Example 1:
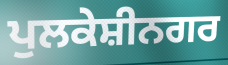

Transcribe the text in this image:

ਪੁਲਕੇਸ਼ੀਨਗਰ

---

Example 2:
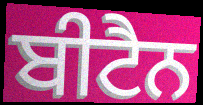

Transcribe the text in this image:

ਬੀਟੈਨ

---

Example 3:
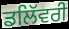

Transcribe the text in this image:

ਡਲਿੱਵਰੀ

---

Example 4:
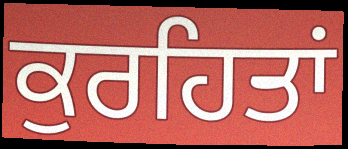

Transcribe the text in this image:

ਕੁਰਹਿਤਾਂ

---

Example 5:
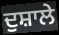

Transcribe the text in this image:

ਦੁਸ਼ਾਲੇ